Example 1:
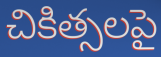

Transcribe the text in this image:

చికిత్సలపై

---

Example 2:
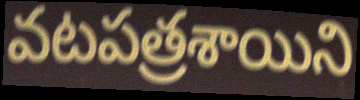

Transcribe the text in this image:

వటపత్రశాయిని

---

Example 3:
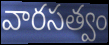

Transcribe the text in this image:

వారసత్వం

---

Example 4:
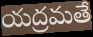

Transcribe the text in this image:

యద్రమతే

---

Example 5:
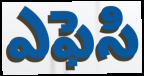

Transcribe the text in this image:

ఎఫెసి